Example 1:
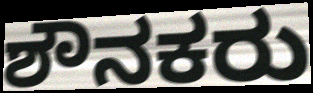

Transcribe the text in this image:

ಶೌನಕರು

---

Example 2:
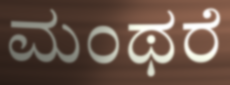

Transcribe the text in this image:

ಮಂಥರೆ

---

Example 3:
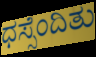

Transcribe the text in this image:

ಧಸ್ಸೆಂದಿತು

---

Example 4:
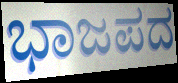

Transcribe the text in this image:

ಭಾಜಪದ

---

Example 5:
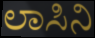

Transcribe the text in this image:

ಲಾಸಿನಿ